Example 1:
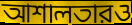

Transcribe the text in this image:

আশালতারও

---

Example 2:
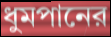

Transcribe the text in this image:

ধুমপানের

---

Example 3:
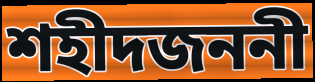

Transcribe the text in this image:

শহীদজননী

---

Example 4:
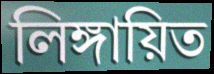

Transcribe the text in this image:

লিঙ্গায়িত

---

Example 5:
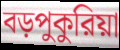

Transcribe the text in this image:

বড়পুকুরিয়া